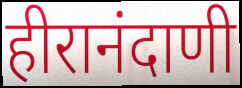
हीरानंदाणी